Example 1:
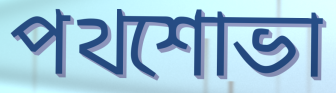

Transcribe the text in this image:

পথশোভা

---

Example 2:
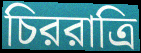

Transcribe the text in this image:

চিররাত্রি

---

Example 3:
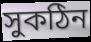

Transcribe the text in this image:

সুকঠিন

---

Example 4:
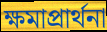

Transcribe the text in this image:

ক্ষমাপ্রার্থনা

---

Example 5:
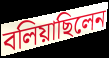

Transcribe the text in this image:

বলিয়াছিলেন